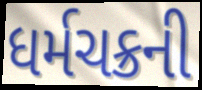
ધર્મચક્રની